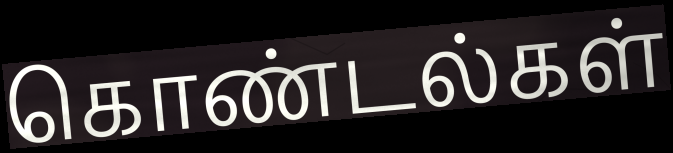
கொண்டல்கள்